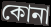
কোনা